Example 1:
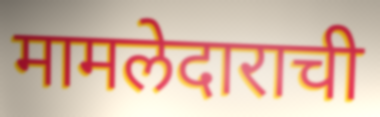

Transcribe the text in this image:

मामलेदाराची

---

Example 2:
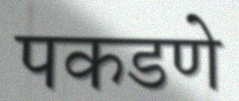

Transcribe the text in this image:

पकडणे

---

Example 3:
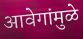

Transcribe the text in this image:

आवेगांमुळे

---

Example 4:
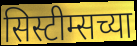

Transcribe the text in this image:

सिस्टीम्सच्या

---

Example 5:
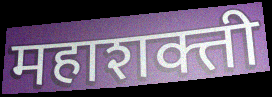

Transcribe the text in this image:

महाशक्ती